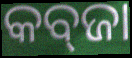
କବ୍‍ଜା